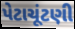
પેટાચૂંટણી